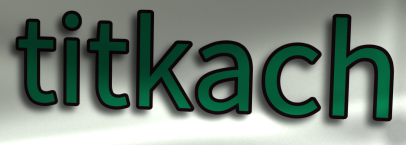
titkach